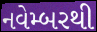
નવેમ્બરથી